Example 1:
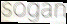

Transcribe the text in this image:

sogan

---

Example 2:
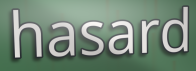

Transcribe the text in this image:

hasard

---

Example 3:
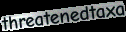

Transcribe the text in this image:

threatenedtaxa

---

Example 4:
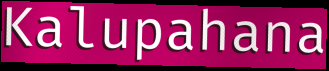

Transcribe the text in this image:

Kalupahana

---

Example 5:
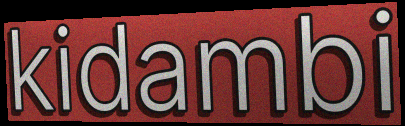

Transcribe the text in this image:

kidambi